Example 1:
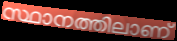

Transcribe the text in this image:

സ്ഥാനത്തിലാണ്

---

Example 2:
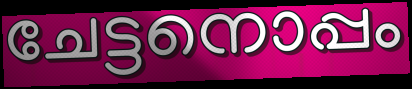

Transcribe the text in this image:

ചേട്ടനൊപ്പം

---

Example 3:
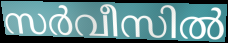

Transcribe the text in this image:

സർവീസിൽ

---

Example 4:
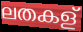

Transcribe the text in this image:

ലതകള്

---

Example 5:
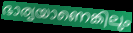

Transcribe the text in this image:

ഭാര്യയാണെങ്കിലും